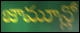
జామూన్లో